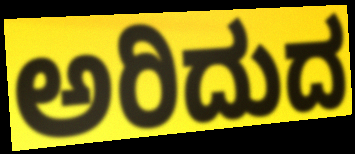
ಅರಿದುದ